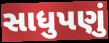
સાધુપણું